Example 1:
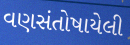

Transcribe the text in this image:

વણસંતોષાયેલી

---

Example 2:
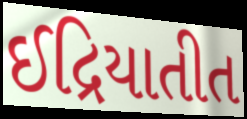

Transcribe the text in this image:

ઈદ્રિયાતીત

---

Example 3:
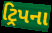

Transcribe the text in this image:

ટ્રિપના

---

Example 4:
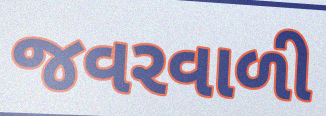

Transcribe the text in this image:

જવરવાળી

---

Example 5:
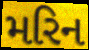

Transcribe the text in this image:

મરિન